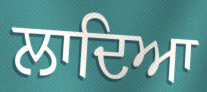
ਲਾਦਿਆ